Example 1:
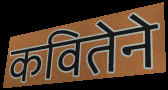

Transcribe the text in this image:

कवितेने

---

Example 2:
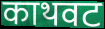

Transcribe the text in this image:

काथवट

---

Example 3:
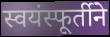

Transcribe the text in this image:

स्वयंस्फूर्तीने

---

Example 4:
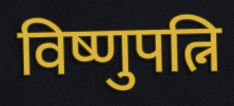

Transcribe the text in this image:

विष्णुपत्नि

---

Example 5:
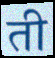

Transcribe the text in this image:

ती